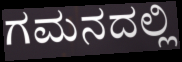
ಗಮನದಲ್ಲಿ